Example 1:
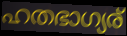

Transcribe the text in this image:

ഹതഭാഗ്യര്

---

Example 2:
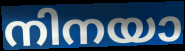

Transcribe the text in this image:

നിനയാ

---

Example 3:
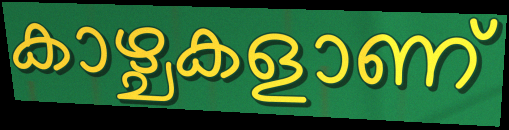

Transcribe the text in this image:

കാഴ്ചകളാണ്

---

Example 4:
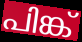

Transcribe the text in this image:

പിങ്ക്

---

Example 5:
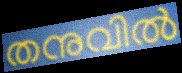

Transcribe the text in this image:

തനുവിൽ